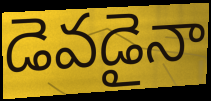
డెవడైనా